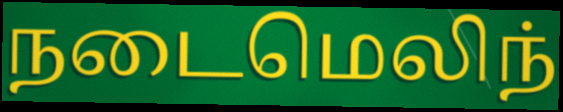
நடைமெலிந்